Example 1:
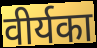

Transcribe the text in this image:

वीर्यका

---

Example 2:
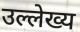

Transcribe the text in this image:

उल्लेख्य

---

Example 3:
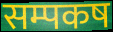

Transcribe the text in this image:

सम्पकष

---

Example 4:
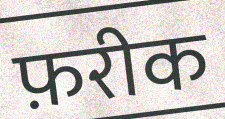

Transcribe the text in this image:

फ़रीक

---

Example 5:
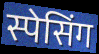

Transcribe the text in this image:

स्पेसिंग